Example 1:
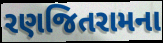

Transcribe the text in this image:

રણજિતરામના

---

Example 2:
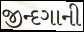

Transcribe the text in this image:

જીન્દગાની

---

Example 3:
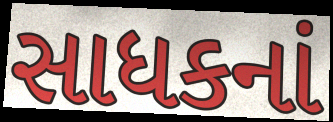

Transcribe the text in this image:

સાધકનાં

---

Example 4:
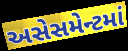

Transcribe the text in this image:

અસેસમેન્ટમાં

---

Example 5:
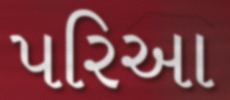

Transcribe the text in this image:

પરિઆ